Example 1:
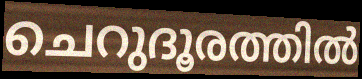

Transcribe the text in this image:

ചെറുദൂരത്തിൽ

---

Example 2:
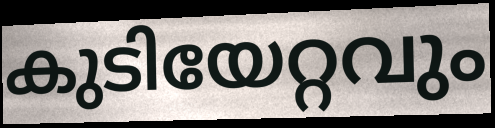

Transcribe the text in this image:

കുടിയേറ്റവും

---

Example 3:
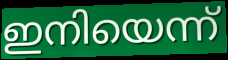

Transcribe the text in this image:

ഇനിയെന്ന്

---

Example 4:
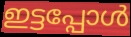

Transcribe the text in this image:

ഇട്ടപ്പോൾ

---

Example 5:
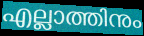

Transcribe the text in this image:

എല്ലാത്തിനും